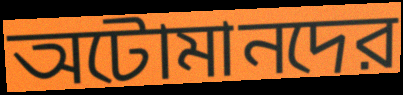
অটোমানদের